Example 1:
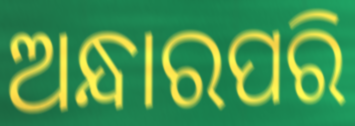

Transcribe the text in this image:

ଅନ୍ଧାରପରି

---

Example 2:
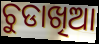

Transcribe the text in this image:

ଚୁଡାଖିଆ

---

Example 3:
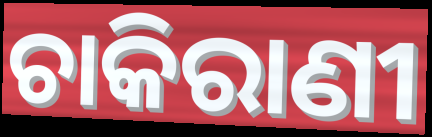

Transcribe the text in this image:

ଚାକିରାଣୀ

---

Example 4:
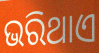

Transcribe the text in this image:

ଭରିଥାଏ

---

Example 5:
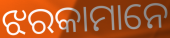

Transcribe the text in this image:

ଝରକାମାନେ